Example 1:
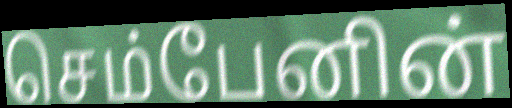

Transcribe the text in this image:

செம்பேனின்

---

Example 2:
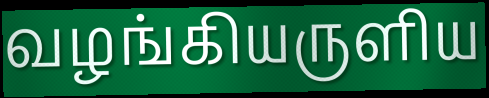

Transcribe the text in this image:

வழங்கியருளிய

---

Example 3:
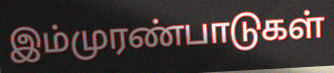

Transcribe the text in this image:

இம்முரண்பாடுகள்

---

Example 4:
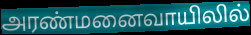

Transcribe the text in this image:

அரண்மனைவாயிலில்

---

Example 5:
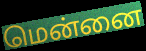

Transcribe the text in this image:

மென்னை